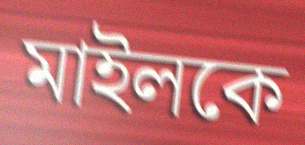
মাইলকে